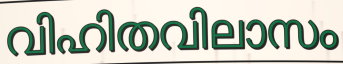
വിഹിതവിലാസം